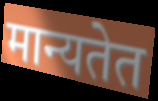
मान्यतेत